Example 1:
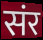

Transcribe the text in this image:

संर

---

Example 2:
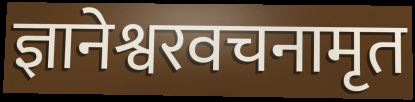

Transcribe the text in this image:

ज्ञानेश्वरवचनामृत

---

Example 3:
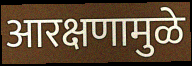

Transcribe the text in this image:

आरक्षणामुळे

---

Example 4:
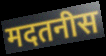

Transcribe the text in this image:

मदतनीस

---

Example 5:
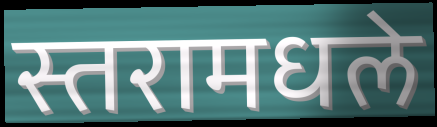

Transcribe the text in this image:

स्तरामधले